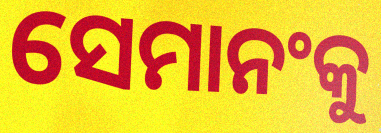
ସେମାନଂକୁ